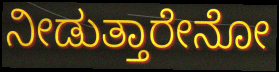
ನೀಡುತ್ತಾರೇನೋ